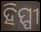
ହିପ୍ପୀ